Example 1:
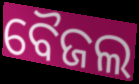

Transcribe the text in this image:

ବୈଜଲ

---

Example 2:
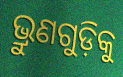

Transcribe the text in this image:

ଭ୍ରୁଣଗୁଡ଼ିକୁ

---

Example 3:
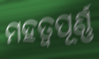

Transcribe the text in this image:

ମହତ୍ବପୂର୍ଣ୍ଣ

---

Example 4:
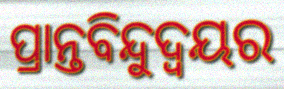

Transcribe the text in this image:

ପ୍ରାନ୍ତବିନ୍ଦୁଦ୍ଵୟର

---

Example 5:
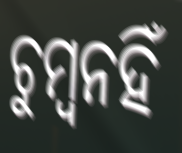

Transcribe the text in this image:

ଚୁମ୍ବନହିଁ